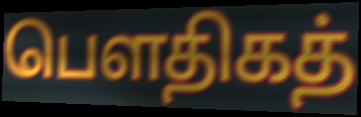
பௌதிகத்